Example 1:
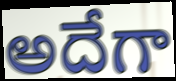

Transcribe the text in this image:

అదేగా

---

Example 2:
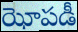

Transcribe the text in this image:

ఝోపడీ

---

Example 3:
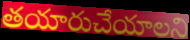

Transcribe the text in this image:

తయారుచేయాలని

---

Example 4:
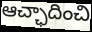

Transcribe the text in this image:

ఆచ్ఛాదించి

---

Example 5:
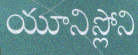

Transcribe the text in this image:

యూనిస్లోని